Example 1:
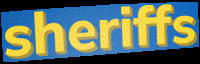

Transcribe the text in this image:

sheriffs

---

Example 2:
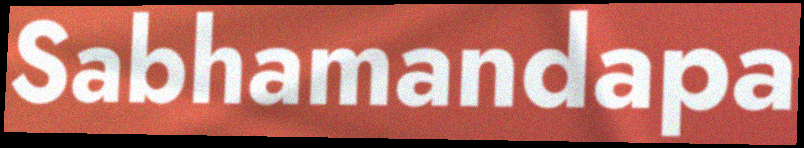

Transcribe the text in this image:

Sabhamandapa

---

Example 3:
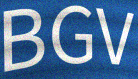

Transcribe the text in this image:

BGV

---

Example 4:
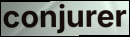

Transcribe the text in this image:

conjurer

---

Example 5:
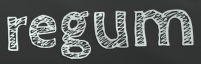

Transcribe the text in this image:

regum